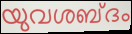
യുവശബ്ദം